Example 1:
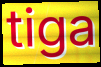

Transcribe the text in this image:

tiga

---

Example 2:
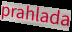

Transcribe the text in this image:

prahlada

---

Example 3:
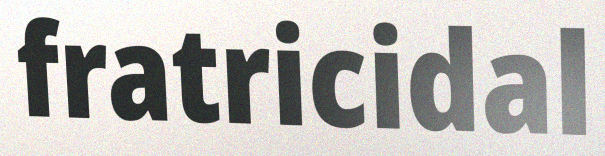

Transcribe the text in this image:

fratricidal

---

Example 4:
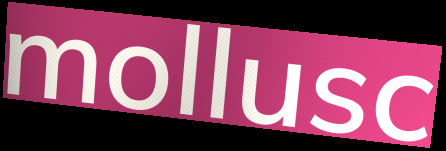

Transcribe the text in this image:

mollusc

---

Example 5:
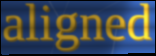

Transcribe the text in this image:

aligned